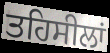
ਤਹਿਸੀਲਾਂ